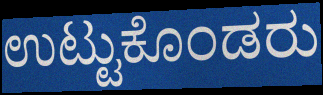
ಉಟ್ಟುಕೊಂಡರು